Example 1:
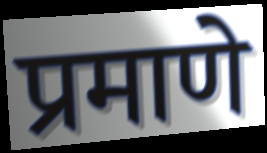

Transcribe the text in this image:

प्रमाणे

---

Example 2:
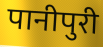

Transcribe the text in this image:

पानीपुरी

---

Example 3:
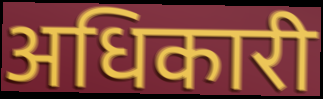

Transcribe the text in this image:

अधिकारी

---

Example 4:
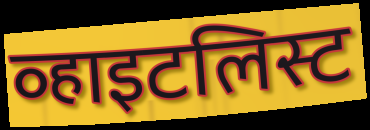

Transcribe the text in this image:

व्हाइटलिस्ट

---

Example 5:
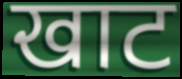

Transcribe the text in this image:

खाट